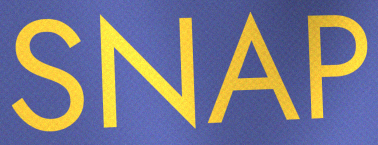
SNAP